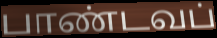
பாண்டவப்